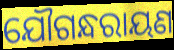
ଯୌଗନ୍ଧରାୟଣ